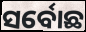
ସର୍ବୋଛ